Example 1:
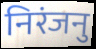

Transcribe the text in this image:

निरंजनु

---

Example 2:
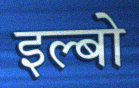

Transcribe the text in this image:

इल्बो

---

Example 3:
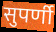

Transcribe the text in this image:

सुपर्णी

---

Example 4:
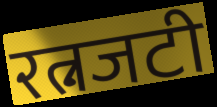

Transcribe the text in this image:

रत्नजटी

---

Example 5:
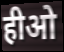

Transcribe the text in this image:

हीओ